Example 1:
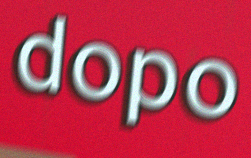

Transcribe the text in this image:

dopo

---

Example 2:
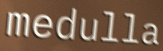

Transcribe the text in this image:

medulla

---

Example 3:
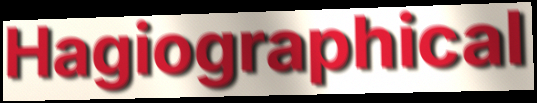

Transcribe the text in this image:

Hagiographical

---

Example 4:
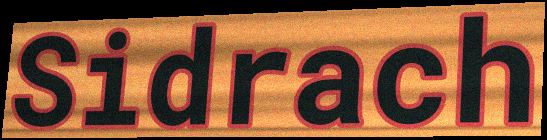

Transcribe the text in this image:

Sidrach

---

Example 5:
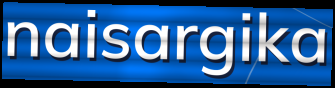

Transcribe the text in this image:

naisargika